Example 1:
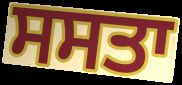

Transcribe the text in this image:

ਸਸਤਾ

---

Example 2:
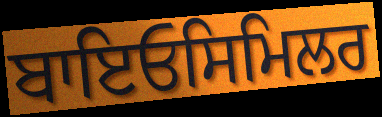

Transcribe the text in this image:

ਬਾਇਓਸਿਮਿਲਰ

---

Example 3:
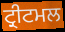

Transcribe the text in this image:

ਟ੍ਰੀਟਮਲ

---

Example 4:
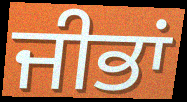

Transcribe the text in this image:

ਜੀਭਾਂ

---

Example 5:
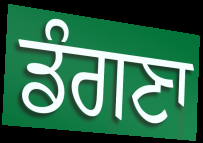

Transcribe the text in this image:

ਡੰਗਣਾ